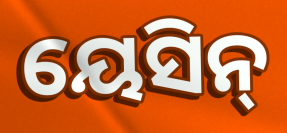
ୟେସିନ୍